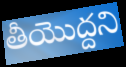
తీయొద్దని